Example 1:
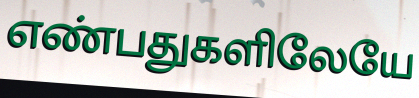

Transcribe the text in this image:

எண்பதுகளிலேயே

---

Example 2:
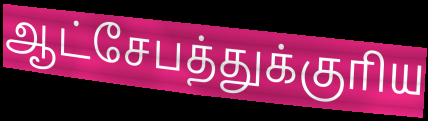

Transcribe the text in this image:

ஆட்சேபத்துக்குரிய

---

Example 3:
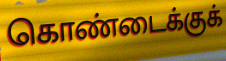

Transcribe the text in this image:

கொண்டைக்குக்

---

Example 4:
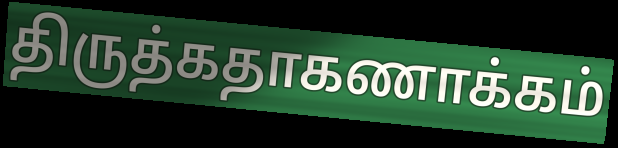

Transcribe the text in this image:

திருத்கதாகணாக்கம்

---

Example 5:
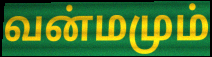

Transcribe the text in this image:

வன்மமும்